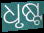
ଧୃଷ୍ଟ